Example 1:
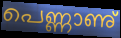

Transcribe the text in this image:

പെണ്ണാണു്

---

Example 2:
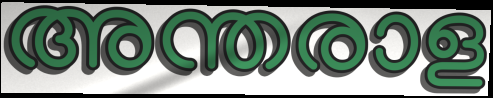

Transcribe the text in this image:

അന്തരാള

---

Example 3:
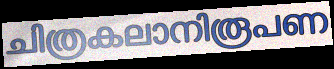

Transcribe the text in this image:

ചിത്രകലാനിരൂപണ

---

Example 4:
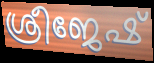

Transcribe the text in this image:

ശ്രീജേഷ്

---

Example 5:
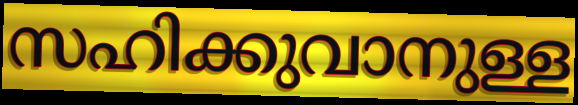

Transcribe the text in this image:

സഹിക്കുവാനുള്ള